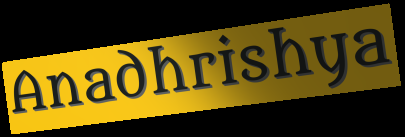
Anadhrishya